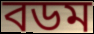
বডম